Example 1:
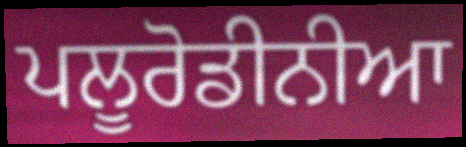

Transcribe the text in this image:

ਪਲੂਰੋਡੀਨੀਆ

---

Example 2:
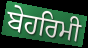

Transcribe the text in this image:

ਬੇਹਰਿਮੀ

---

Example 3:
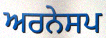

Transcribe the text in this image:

ਅਰਨੇਸਪ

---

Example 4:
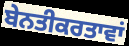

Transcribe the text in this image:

ਬੇਨਤੀਕਰਤਾਵਾਂ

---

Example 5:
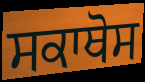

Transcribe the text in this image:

ਸਕਾਥੋਸ